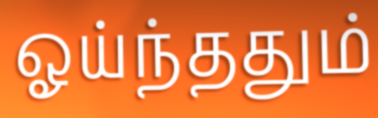
ஓய்ந்ததும்